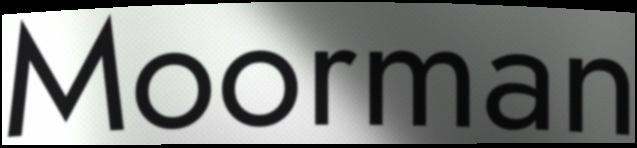
Moorman